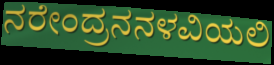
ನರೇಂದ್ರನನಳವಿಯಲಿ